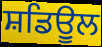
ਸ਼ਡਿਉੂਲ